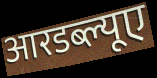
आरडब्ल्यूए